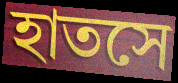
হাতসে